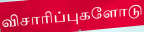
விசாரிப்புகளோடு